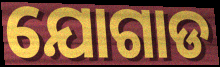
ଯୋଗାଡ